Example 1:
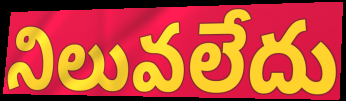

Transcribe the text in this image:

నిలువలేదు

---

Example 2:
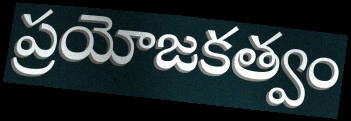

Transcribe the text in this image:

ప్రయోజకత్వం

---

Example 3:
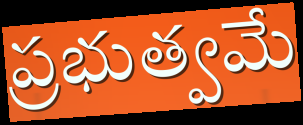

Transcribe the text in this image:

ప్రభుత్వమే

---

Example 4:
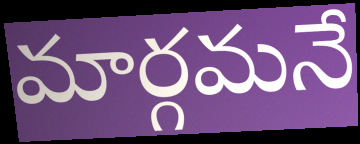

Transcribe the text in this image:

మార్గమనే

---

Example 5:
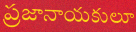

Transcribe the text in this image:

ప్రజానాయకులూ